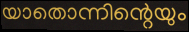
യാതൊന്നിന്റെയും